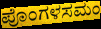
ಪೊಂಗಳಸಮಂ